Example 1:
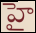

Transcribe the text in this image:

హై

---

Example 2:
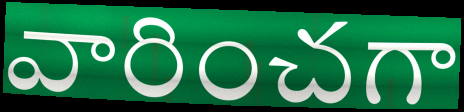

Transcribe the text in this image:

వారించగా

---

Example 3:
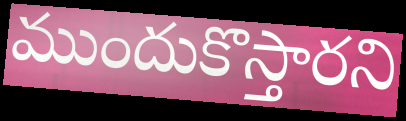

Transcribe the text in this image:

ముందుకొస్తారని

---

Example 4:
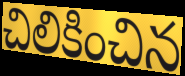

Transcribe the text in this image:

చిలికించిన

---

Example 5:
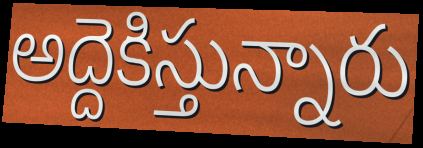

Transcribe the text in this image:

అద్దెకిస్తున్నారు